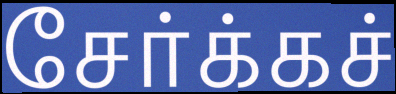
சேர்க்கச்